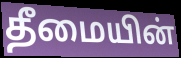
தீமையின்